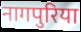
नागपुरिया